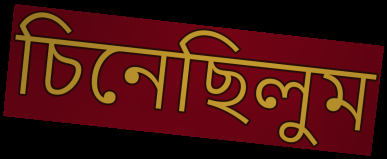
চিনেছিলুম